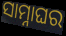
ସାମ୍ନାଘର